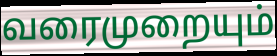
வரைமுறையும்